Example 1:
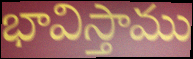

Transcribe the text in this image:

భావిస్తాము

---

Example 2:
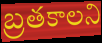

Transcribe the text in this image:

బ్రతకాలని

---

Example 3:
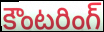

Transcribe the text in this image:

కౌంటరింగ్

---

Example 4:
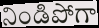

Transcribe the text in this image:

నిండిపోగా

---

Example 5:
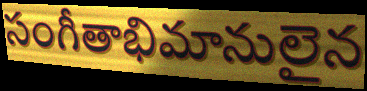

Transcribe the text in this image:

సంగీతాభిమానులైన